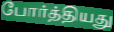
போர்த்தியது